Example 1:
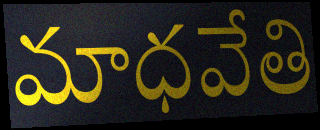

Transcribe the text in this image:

మాధవేతి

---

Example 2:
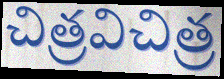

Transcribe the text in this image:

చిత్రవిచిత్ర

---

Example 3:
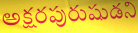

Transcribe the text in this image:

అక్షరపురుషుడని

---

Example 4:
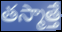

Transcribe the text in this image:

తస్మాత్తే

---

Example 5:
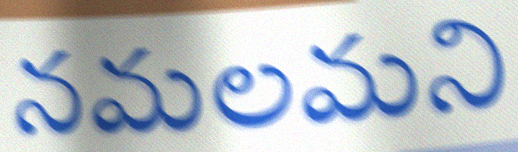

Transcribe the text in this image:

నమలమని